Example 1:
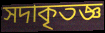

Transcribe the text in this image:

সদাকৃতজ্ঞ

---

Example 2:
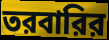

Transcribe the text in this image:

তরবারির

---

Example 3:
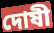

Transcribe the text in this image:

দোষী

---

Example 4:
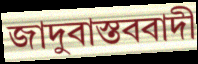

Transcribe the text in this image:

জাদুবাস্তববাদী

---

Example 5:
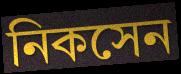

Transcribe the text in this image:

নিকসেন